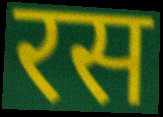
रस